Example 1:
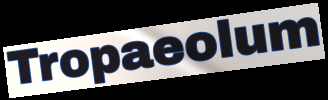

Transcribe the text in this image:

Tropaeolum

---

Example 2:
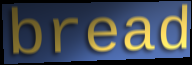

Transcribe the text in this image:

bread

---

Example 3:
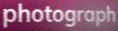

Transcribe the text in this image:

photograph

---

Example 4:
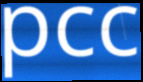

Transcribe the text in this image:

pcc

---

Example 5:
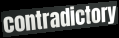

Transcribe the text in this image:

contradictory